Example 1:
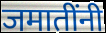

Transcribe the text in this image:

जमातींनी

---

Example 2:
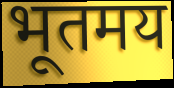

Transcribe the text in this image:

भूतमय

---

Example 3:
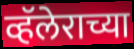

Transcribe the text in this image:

व्हॅलेराच्या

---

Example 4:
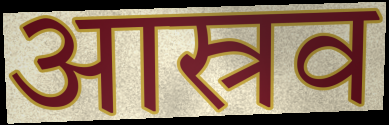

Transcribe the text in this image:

आस्रव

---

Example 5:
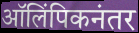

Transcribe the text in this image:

ऑलिंपिकनंतर